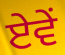
ਏਵੇਂ